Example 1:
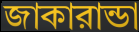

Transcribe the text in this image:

জাকারান্ডা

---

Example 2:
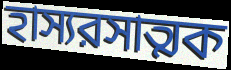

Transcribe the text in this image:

হাস্যরসাত্মক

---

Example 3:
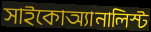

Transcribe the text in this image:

সাইকোঅ্যানালিস্ট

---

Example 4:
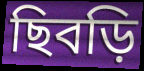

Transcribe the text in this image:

ছিবড়ি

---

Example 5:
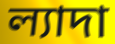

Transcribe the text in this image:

ল্যাদা